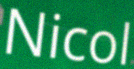
Nicol